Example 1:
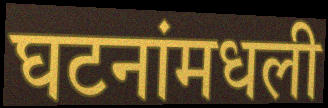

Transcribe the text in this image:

घटनांमधली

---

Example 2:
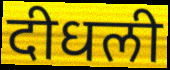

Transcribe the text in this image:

दीधली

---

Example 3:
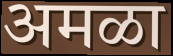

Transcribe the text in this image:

अमळा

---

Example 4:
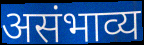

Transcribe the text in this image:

असंभाव्य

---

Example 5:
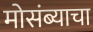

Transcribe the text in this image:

मोसंब्याचा